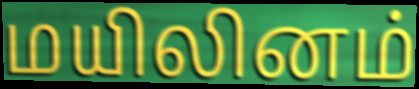
மயிலினம்